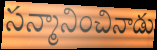
సన్మానించినాడు